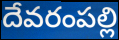
దేవరంపల్లి